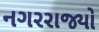
નગરરાજ્યો